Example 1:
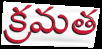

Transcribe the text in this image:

క్రమత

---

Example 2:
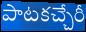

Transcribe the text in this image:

పాటకచ్చేరీ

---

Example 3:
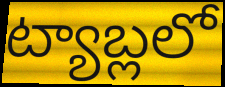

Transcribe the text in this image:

ట్యాబ్లలో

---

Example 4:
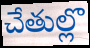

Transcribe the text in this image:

చేతుల్లొ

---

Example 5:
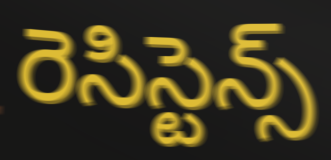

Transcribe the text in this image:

రెసిస్టెన్స్